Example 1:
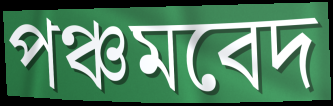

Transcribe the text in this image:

পঞ্চমবেদ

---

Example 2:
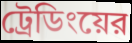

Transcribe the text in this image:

ট্রেডিংয়ের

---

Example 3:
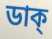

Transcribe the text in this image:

ডাক্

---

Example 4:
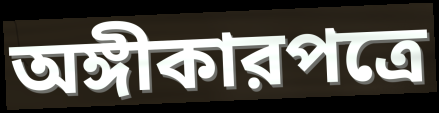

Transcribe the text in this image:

অঙ্গীকারপত্রে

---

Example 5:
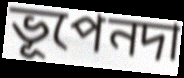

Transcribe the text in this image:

ভূপেনদা